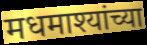
मधमाश्‍यांच्या